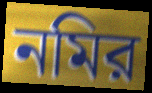
নমির